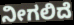
ನೀಗಲಿದೆ